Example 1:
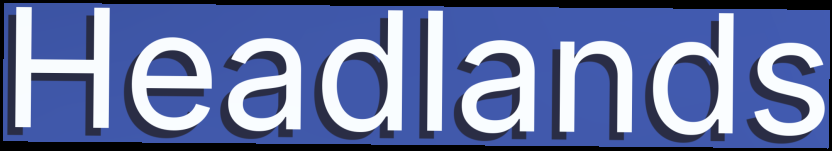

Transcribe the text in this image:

Headlands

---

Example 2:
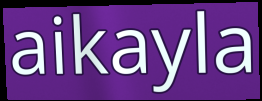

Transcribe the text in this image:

aikayla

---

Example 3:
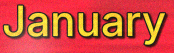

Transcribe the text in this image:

January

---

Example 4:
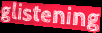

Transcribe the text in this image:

glistening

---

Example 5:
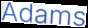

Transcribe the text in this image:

Adams